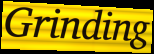
Grinding